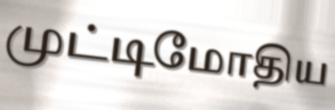
முட்டிமோதிய